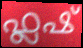
ഫ്ലഷ്